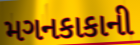
મગનકાકાની